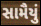
સામૈયું